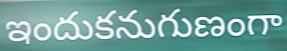
ఇందుకనుగుణంగా